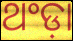
ଥଂଡ଼ା